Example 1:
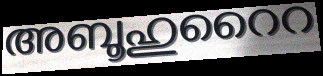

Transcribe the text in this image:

അബൂഹുറൈറ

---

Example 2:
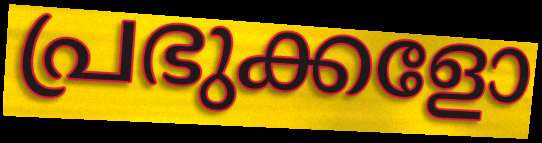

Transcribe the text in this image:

പ്രഭുക്കളോ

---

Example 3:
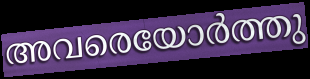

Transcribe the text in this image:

അവരെയോർത്തു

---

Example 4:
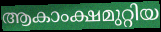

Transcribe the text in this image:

ആകാംക്ഷമുറ്റിയ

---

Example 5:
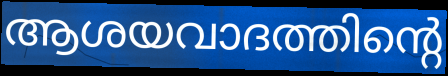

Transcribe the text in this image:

ആശയവാദത്തിന്റെ